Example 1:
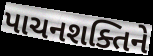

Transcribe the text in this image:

પાચનશક્તિને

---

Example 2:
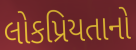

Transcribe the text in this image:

લોકપ્રિયતાનો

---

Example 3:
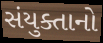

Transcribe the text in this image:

સંયુક્તાનો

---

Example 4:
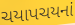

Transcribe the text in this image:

ચયાપચયનાં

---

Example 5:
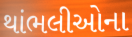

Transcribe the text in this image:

થાંભલીઓના